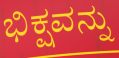
ಭಿಕ್ಷವನ್ನು